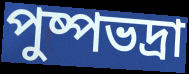
পুষ্পভদ্রা